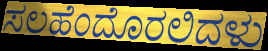
ಸಲಹೆಂದೊರಲಿದಳು